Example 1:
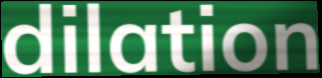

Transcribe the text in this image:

dilation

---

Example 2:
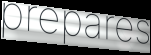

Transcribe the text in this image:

prepares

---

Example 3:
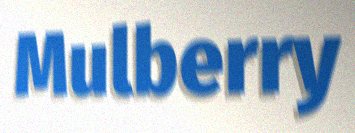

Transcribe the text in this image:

Mulberry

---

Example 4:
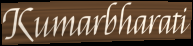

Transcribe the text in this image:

Kumarbharati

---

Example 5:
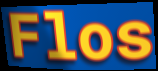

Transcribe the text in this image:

Flos